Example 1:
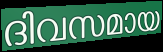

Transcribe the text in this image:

ദിവസമായ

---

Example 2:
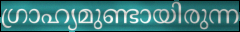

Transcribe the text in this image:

ഗ്രാഹ്യമുണ്ടായിരുന്ന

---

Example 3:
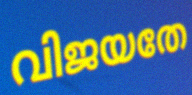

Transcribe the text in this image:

വിജയതേ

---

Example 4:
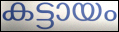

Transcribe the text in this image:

കട്ടായം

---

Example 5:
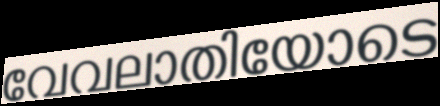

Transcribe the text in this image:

വേവലാതിയോടെ